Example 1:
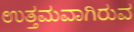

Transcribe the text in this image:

ಉತ್ತಮವಾಗಿರುವ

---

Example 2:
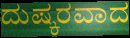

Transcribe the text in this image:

ದುಷ್ಕರವಾದ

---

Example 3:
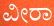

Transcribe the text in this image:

ವೀರಾ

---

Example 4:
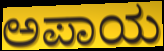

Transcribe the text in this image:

ಅಪಾಯ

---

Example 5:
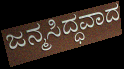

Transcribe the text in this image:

ಜನ್ಮಸಿದ್ಧವಾದ